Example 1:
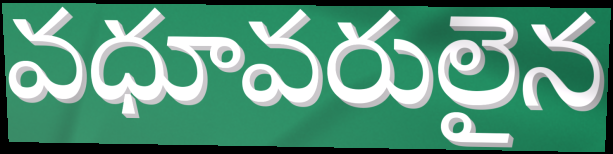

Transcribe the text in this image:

వధూవరులైన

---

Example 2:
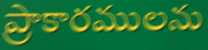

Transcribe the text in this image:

ప్రాకారములను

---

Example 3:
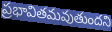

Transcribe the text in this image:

ప్రభావితమవుతుందని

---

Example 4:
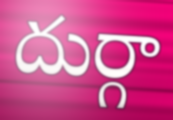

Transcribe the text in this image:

దుర్గా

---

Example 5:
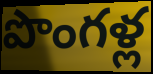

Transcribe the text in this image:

పొంగళ్ల